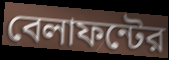
বেলাফন্টের